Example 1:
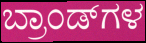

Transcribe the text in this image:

ಬ್ರಾಂಡ್‌ಗಳ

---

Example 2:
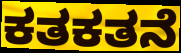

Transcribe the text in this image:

ಕತಕತನೆ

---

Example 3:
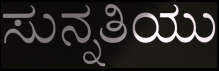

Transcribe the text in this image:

ಸುನ್ನತಿಯು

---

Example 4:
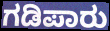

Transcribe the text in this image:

ಗಡಿಪಾರು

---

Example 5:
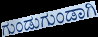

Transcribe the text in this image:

ಗುಂಡುಗುಂಡಾಗಿ